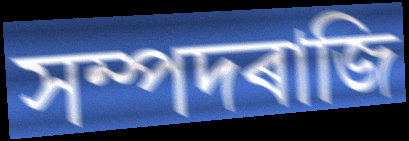
সম্পদৰাজি